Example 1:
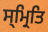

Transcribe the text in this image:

ਸ੍ਮ੍ਰਿਤਿ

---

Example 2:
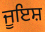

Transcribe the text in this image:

ਜੂਇਸ਼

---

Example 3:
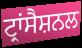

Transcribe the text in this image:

ਟ੍ਰਾਂਸੈਸ਼ਨਲ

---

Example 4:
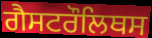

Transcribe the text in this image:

ਗੈਸਟਰੌਲਿਥਸ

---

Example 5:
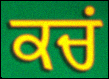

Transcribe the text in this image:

ਕਚਂ